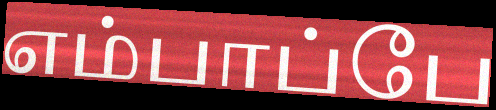
எம்பாப்பே